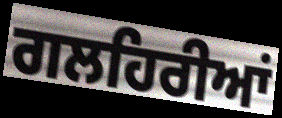
ਗਲਹਿਰੀਆਂ